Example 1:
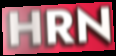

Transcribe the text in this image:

HRN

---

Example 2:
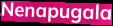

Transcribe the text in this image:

Nenapugala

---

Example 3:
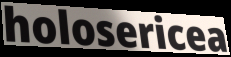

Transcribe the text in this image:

holosericea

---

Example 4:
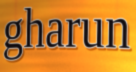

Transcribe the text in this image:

gharun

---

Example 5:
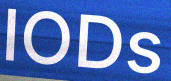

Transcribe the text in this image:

IODs